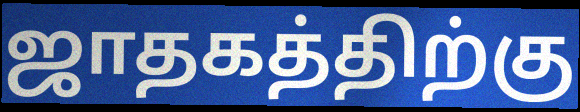
ஜாதகத்திற்கு